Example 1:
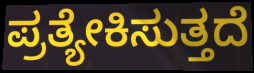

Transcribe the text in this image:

ಪ್ರತ್ಯೇಕಿಸುತ್ತದೆ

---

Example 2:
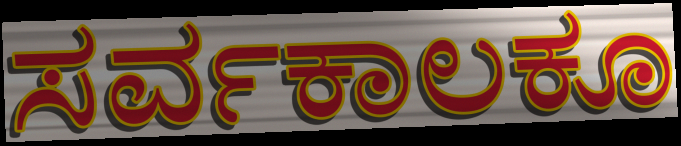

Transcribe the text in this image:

ಸರ್ವಕಾಲಕೂ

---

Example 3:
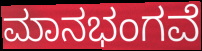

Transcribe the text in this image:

ಮಾನಭಂಗವೆ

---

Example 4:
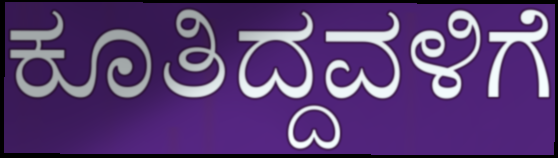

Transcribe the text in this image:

ಕೂತಿದ್ದವಳಿಗೆ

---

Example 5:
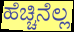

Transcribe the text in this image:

ಹೆಚ್ಚಿನೆಲ್ಲ